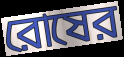
রোষের